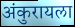
अंकुरायला